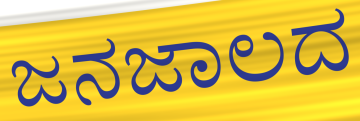
ಜನಜಾಲದ